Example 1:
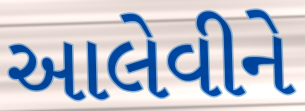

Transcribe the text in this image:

આલેવીને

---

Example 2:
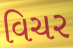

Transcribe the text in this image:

વિચર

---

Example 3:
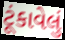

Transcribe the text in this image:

ટૂંકાવેલું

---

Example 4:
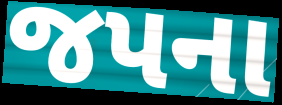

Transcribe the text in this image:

જપના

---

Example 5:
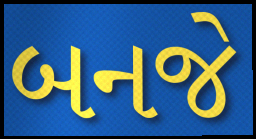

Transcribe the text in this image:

બનજે